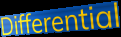
Differential